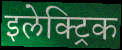
इलेक्ट्रिक